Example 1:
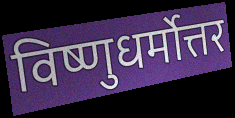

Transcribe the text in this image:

विष्णुधर्मोत्तर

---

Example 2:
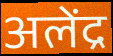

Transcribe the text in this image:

अलेंद्र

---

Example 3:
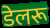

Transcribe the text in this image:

डेलरू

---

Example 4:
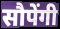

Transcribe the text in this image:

सौपेंगी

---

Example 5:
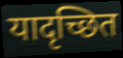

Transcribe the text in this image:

यादृच्छित